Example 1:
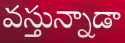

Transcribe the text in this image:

వస్తున్నాడా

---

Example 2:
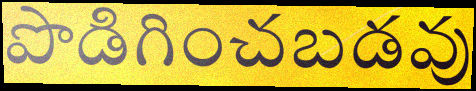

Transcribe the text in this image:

పొడిగించబడవు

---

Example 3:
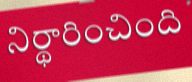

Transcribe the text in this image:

నిర్థారించింది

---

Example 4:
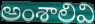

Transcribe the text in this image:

అంశాలివి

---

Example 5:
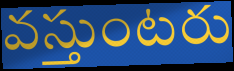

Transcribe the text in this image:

వస్తుంటరు